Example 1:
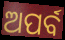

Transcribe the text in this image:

ଅପର୍ବ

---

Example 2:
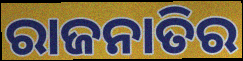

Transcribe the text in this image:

ରାଜନାତିର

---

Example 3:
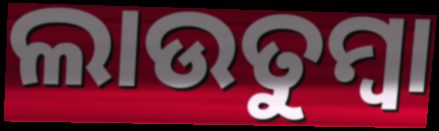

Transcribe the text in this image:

ଲାଉତୁମ୍ବା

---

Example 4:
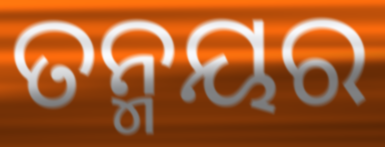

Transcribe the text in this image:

ତନ୍ମୟର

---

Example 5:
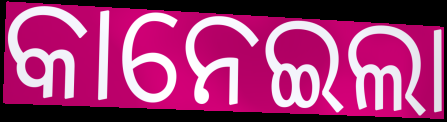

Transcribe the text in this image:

କାନେଇଲା